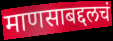
माणसाबद्दलचं